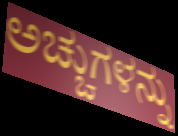
ಅಚ್ಚುಗಳನ್ನು